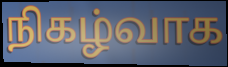
நிகழ்வாக